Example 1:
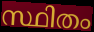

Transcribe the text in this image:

സ്ഥിതം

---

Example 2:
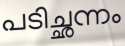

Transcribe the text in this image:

പടിച്ഛന്നം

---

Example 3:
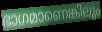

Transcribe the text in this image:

ഭാഗമാണെങ്കിലും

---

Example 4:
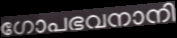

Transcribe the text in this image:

ഗോപഭവനാനി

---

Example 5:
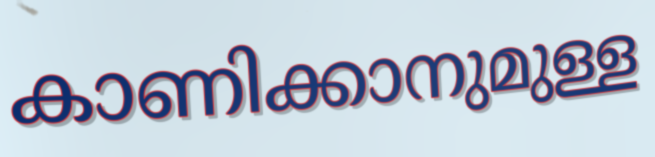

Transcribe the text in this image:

കാണിക്കാനുമുള്ള